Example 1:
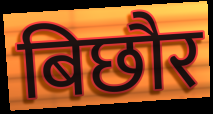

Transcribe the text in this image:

बिछौर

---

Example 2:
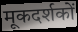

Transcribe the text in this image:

मूकदर्शकों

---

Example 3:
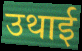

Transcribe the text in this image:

उथाई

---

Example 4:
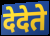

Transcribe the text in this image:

देदेते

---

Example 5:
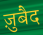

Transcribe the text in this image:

ज़ुबैद